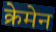
क्रेमेन